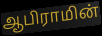
ஆபிராமின்